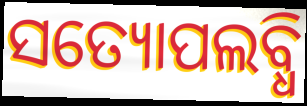
ସତ୍ୟୋପଲବ୍ଧି